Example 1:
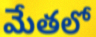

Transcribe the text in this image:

మేతలో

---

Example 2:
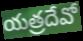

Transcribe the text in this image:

యత్రదేవో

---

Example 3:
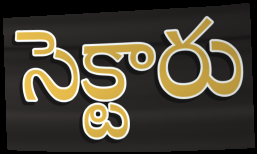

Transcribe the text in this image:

సెక్టారు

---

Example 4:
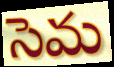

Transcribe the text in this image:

సెమ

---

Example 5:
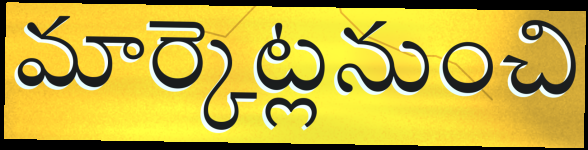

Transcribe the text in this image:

మార్కెట్లనుంచి